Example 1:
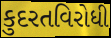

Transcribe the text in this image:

કુદરતવિરોધી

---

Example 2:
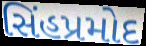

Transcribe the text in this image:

સિંહપ્રમોદ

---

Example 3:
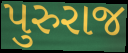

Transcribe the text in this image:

પુરુરાજ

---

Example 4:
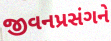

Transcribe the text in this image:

જીવનપ્રસંગને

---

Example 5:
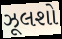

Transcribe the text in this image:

ઝૂલશો